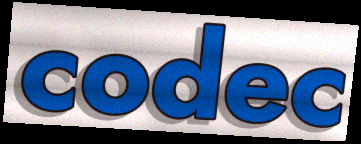
codec